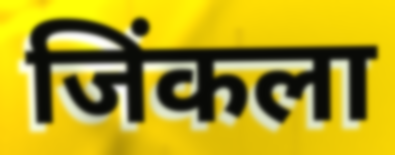
जिंकला